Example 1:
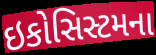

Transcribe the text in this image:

ઇકોસિસ્ટમના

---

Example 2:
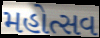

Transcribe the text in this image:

મહોત્સવ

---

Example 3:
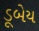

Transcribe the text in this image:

ડૂબેય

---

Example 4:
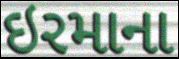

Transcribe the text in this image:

ઇરમાના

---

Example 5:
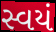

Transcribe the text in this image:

સ્વયં